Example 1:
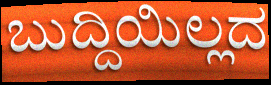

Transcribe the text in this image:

ಬುದ್ದಿಯಿಲ್ಲದ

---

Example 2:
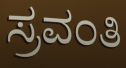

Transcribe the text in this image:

ಸ್ರವಂತಿ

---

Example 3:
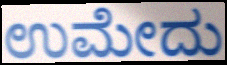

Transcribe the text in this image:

ಉಮೇದು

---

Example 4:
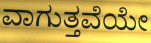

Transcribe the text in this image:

ವಾಗುತ್ತವೆಯೇ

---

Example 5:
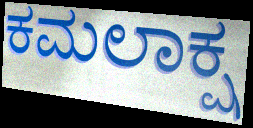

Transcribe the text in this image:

ಕಮಲಾಕ್ಷ